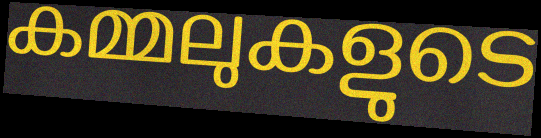
കമ്മലുകളുടെ